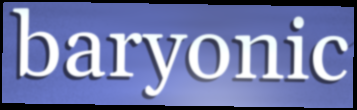
baryonic